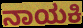
ನಾಯಕಿ